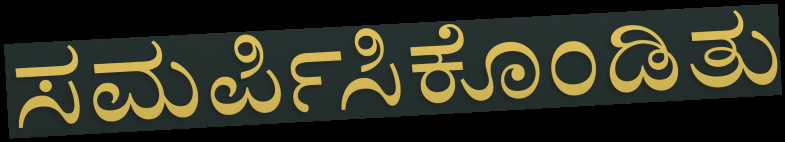
ಸಮರ್ಪಿಸಿಕೊಂಡಿತು